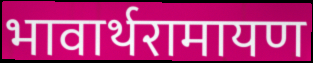
भावार्थरामायण